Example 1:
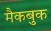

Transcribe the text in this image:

मैकबुक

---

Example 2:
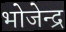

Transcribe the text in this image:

भोजेन्द्र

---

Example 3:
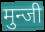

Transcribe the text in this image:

मुन्जी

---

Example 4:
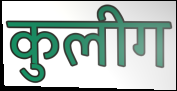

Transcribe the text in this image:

कुलीग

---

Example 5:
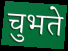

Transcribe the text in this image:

चुभते